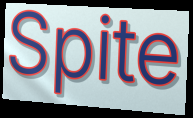
Spite